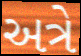
અત્રે